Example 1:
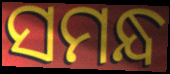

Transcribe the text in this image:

ସମନ୍ଧ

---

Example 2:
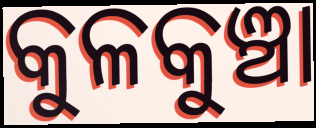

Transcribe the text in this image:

କୁଳକୁଞ୍ଚା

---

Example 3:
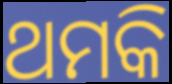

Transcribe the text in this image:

ଥମକି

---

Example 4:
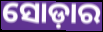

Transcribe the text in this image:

ସୋଡ଼ାର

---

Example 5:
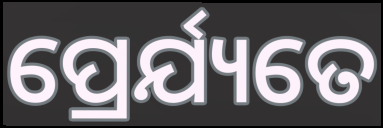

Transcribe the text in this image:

ପ୍ରେର୍ଯ୍ୟତେ